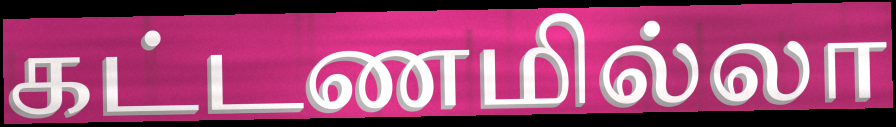
கட்டணமில்லா